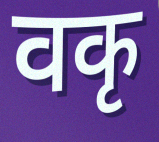
वकृ